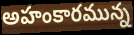
అహంకారమున్న